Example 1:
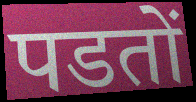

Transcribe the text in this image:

पडतों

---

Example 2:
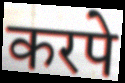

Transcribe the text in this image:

करपे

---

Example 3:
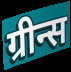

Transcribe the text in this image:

ग्रीन्स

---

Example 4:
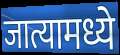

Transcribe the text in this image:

जात्यामध्ये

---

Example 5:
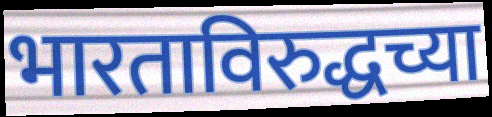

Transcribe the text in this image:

भारताविरुद्धच्या